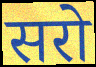
सरो